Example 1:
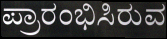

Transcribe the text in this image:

ಪ್ರಾರಂಭಿಸಿರುವ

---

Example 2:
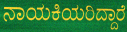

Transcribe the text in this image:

ನಾಯಕಿಯರಿದ್ದಾರೆ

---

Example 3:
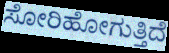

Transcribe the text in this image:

ಸೋರಿಹೋಗುತ್ತಿದೆ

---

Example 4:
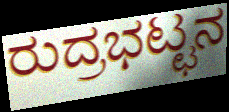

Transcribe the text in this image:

ರುದ್ರಭಟ್ಟನ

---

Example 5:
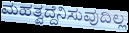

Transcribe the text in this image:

ಮಹತ್ವದ್ದೆನಿಸುವುದಿಲ್ಲ